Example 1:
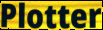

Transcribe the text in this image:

Plotter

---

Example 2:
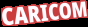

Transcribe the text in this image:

CARICOM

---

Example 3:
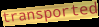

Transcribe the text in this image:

transported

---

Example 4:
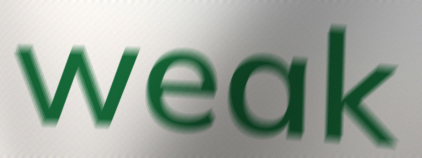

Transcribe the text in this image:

weak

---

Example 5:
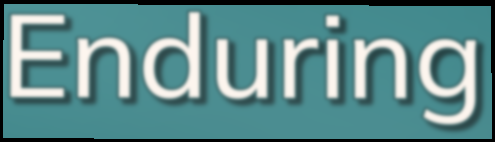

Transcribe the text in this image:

Enduring